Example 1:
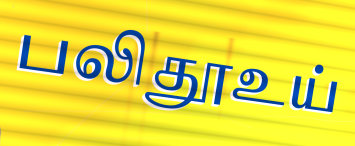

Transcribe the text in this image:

பலிதூஉய்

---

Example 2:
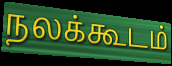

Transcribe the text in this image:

நலக்கூடம்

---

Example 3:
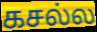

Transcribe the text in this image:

கசல்ல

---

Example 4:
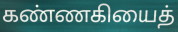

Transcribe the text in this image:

கண்ணகியைத்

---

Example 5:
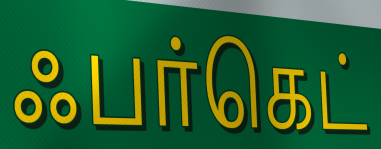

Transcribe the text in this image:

ஃபர்கெட்